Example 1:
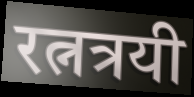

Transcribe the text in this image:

रत्नत्रयी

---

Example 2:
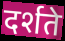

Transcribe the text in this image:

दर्शते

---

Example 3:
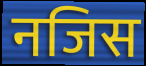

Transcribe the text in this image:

नजिस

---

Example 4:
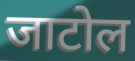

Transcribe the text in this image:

जाटोल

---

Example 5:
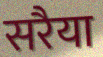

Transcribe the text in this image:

सरैया